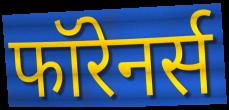
फॉरेनर्स